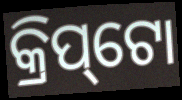
କ୍ରିପ୍‌ଟୋ